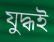
যুদ্ধই